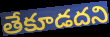
తేకూడదని